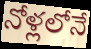
నోళ్లలోనే